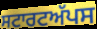
ਸਟਾਰਟਅੱਪਸ